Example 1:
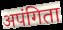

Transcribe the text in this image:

अपंगिता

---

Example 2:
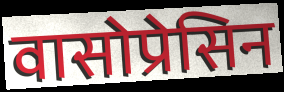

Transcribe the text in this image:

वासोप्रेसिन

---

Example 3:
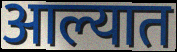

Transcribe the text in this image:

आल्यात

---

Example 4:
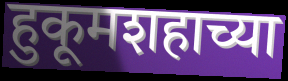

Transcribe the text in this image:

हुकूमशहाच्या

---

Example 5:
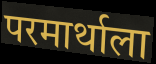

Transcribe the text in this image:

परमार्थाला